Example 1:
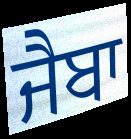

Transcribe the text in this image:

ਜੈਬਾ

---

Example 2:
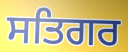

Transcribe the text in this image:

ਸਤਿਗਰ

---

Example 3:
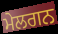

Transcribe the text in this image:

ਮੇਲਗਨ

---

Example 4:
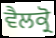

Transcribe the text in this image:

ਵੈਲਕ੍ਰੋ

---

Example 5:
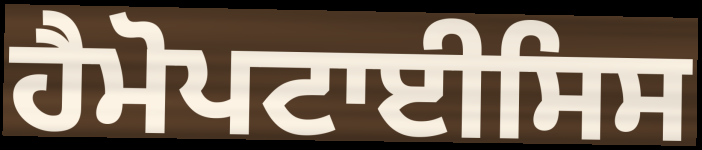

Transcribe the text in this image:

ਹੈਮੋਪਟਾਈਸਿਸ